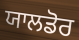
ਯਾਲਡੋਰ